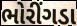
ભોરીંગડા